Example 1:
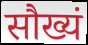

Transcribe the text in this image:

सौख्यं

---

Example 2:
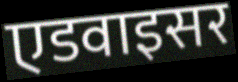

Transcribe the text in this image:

एडवाइसर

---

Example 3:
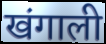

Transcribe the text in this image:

खंगाली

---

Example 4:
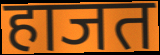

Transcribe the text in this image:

हाजत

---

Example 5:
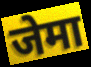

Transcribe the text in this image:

जेमा